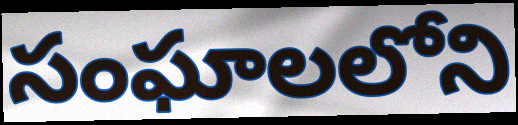
సంఘాలలోని